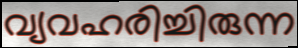
വ്യവഹരിച്ചിരുന്ന